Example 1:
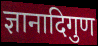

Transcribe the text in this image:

ज्ञानादिगुण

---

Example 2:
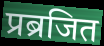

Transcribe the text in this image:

प्रब्रजित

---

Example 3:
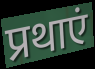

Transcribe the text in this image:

प्रथाएं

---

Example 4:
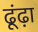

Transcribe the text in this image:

ढूंढ़ा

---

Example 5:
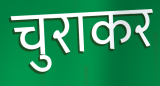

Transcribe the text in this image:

चुराकर